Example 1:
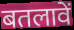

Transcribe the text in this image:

बतलावें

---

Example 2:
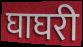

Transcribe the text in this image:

घाघरी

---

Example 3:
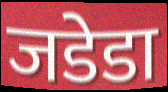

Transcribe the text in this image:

जडेडा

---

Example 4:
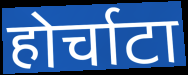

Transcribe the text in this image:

होर्चाटा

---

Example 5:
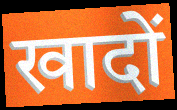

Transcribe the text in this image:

खादों